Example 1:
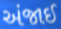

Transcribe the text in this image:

અંજાઈ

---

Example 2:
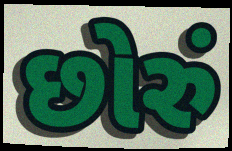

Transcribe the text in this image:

છોરું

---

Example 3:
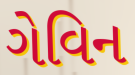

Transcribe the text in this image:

ગેવિન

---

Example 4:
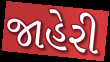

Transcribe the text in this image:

જાહેરી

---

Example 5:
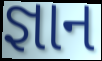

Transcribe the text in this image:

જ્ઞાન